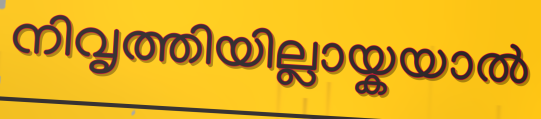
നിവൃത്തിയില്ലായ്കയാൽ